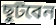
ছুটবেন